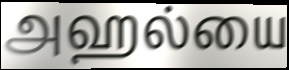
அஹல்யை